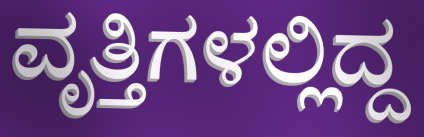
ವೃತ್ತಿಗಳಲ್ಲಿದ್ದ